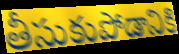
తీసుకుపోడానికి